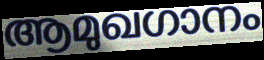
ആമുഖഗാനം